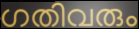
ഗതിവരും